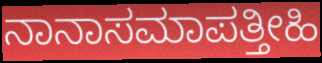
ನಾನಾಸಮಾಪತ್ತೀಹಿ